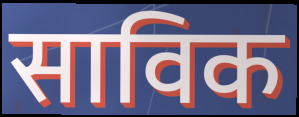
साविक